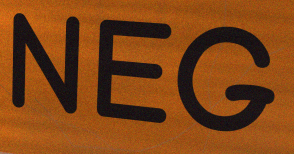
NEG